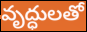
వృద్ధులతో